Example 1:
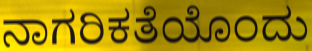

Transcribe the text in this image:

ನಾಗರಿಕತೆಯೊಂದು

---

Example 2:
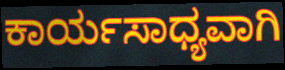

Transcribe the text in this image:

ಕಾರ್ಯಸಾಧ್ಯವಾಗಿ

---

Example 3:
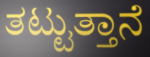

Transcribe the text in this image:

ತಟ್ಟುತ್ತಾನೆ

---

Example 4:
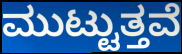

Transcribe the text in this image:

ಮುಟ್ಟುತ್ತವೆ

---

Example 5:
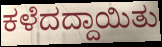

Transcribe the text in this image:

ಕಳೆದದ್ದಾಯಿತು